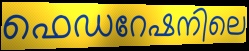
ഫെഡറേഷനിലെ